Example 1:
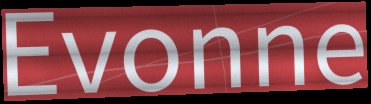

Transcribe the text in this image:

Evonne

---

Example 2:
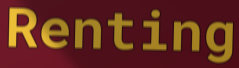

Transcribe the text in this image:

Renting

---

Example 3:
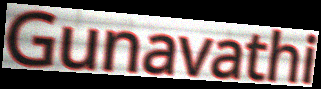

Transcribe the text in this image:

Gunavathi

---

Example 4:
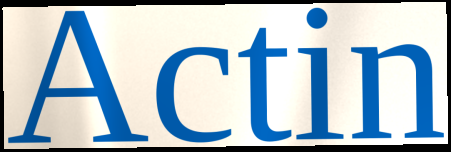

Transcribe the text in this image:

Actin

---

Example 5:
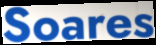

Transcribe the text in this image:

Soares